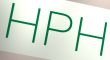
HPH